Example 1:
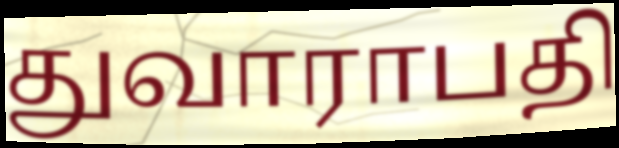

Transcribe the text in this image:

துவாராபதி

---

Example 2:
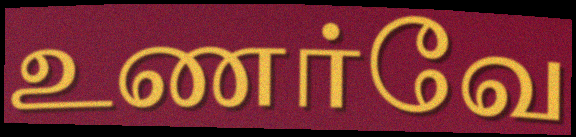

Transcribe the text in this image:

உணர்வே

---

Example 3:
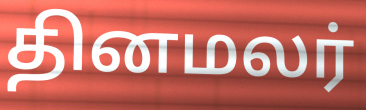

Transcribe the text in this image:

தினமலர்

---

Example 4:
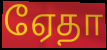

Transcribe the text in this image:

ஏேதா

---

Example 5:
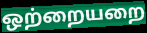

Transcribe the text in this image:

ஒற்றையறை